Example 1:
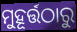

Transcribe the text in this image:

ମୁହୂର୍ତ୍ତଠାରୁ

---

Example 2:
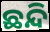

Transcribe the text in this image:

ଛନ୍ଦି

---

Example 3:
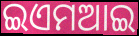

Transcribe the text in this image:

ଇଏମଆଇ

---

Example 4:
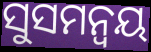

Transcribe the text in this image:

ସୁସମନ୍ୱୟ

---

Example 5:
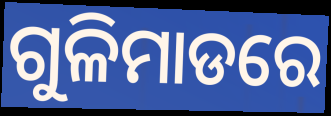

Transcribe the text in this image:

ଗୁଳିମାଡରେ